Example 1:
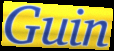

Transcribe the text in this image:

Guin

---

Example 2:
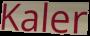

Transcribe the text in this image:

Kaler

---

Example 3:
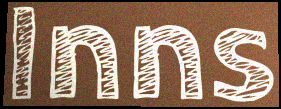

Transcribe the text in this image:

Inns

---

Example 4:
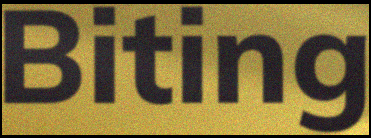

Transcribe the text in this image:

Biting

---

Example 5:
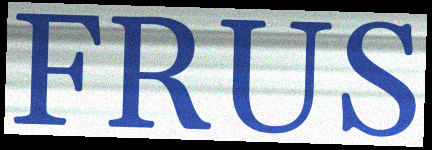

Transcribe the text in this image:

FRUS